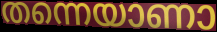
തന്നെയാണാ